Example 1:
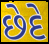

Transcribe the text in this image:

છેદે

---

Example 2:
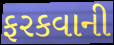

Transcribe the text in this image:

ફરકવાની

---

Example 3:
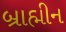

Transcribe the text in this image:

બ્રાહ્મીન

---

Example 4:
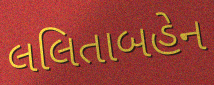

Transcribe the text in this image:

લલિતાબહેન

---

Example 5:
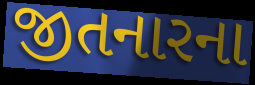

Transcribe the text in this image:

જીતનારના